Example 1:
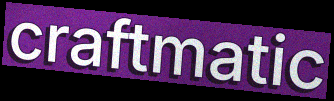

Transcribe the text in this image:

craftmatic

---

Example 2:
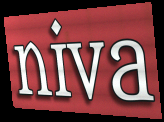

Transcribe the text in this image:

niva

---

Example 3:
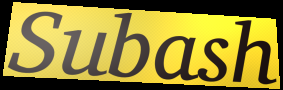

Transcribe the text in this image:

Subash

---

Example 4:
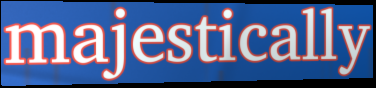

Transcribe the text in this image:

majestically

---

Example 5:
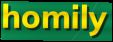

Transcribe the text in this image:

homily